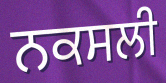
ਨਕਸਲੀ